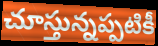
చూస్తున్నప్పటికీ